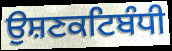
ਉਸ਼ਣਕਟਿਬੰਧੀ